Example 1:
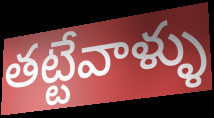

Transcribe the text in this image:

తట్టేవాళ్ళు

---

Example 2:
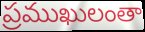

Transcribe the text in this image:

ప్రముఖులంతా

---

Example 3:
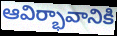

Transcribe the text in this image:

ఆవిర్భావానికి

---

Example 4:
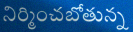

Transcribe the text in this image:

నిర్మించబోతున్న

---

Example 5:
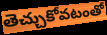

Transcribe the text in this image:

తెచ్చుకోవటంతో